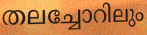
തലച്ചോറിലും